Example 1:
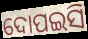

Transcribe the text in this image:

ଦୋପଇସି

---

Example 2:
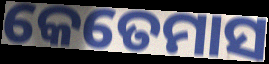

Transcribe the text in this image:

କେତେମାସ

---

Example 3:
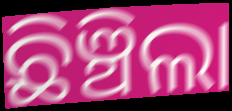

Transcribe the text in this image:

ଛିଞ୍ଚିଲା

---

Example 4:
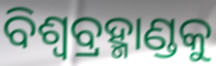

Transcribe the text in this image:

ବିଶ୍ବବ୍ରହ୍ମାଣ୍ଡକୁ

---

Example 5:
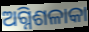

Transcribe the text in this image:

ଅଗ୍ନିଶଳାକା